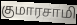
குமாரசாமி